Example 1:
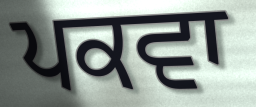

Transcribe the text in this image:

ਪਕਵਾ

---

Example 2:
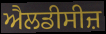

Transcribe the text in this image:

ਐਲਡੀਸੀਜ਼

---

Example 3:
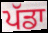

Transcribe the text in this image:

ਪੱਡਾ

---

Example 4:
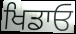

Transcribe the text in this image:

ਖਿਡਾਓ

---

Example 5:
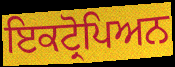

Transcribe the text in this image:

ਇਕਟ੍ਰੋਪਿਅਨ